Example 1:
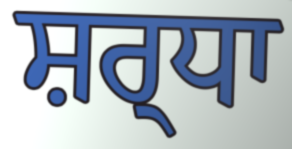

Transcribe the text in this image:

ਸ਼ਰ੍ਧਾ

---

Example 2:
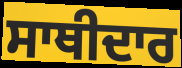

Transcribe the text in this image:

ਸਾਥੀਦਾਰ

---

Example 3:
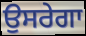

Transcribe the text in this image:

ਉਸਰੇਗਾ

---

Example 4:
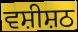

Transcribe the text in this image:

ਵਸ਼ੀਸ਼ਠ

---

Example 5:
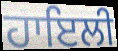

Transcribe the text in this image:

ਹਾਇਲੀ